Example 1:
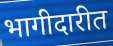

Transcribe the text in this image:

भागीदारीत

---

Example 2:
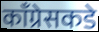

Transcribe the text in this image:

काँग्रेसकडे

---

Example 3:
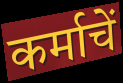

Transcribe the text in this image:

कर्माचें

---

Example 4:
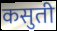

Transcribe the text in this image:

कसुती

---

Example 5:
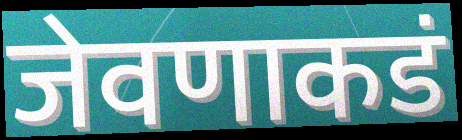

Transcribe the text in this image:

जेवणाकडं